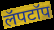
लॅपटॉप